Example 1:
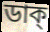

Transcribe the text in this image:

ডাক্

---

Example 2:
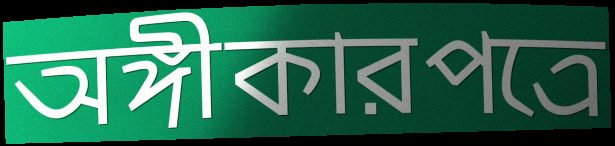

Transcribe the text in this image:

অঙ্গীকারপত্রে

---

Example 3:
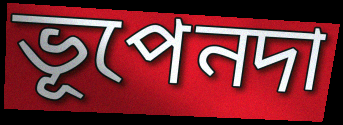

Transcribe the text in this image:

ভূপেনদা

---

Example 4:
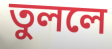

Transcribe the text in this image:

তুললে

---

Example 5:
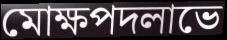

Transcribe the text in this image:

মোক্ষপদলাভে